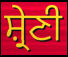
ਸ਼੍ਰੇਣੀ